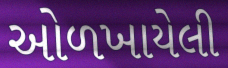
ઓળખાયેલી